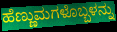
ಹೆಣ್ಣುಮಗಳೊಬ್ಬಳನ್ನು